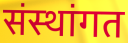
संस्थांगत